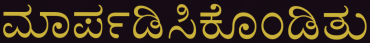
ಮಾರ್ಪಡಿಸಿಕೊಂಡಿತು